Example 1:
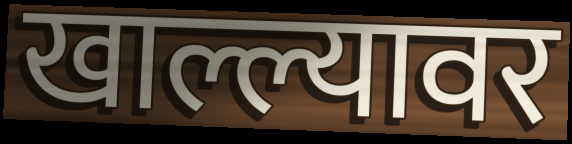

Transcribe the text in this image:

खाल्ल्यावर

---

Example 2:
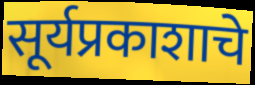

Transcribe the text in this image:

सूर्यप्रकाशाचे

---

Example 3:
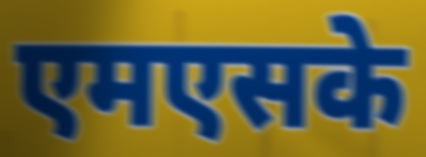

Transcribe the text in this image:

एमएसके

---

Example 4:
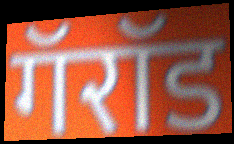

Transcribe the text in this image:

गॅरॉड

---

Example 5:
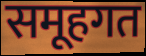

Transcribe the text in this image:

समूहगत